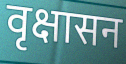
वृक्षासन